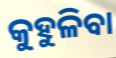
କୁହୁଳିବା